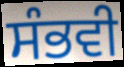
ਸੰਭਵੀ